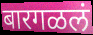
बारगळलं